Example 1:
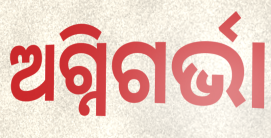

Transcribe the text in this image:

ଅଗ୍ନିଗର୍ଭା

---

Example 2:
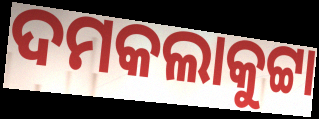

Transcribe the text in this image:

ଦମକଲାକୁଟ୍ଟା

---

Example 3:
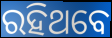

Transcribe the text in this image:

ରହିଥବେ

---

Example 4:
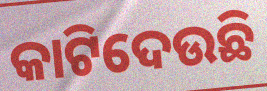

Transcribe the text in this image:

କାଟିଦେଉଛି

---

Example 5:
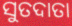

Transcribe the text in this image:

ସୁତଦାତା